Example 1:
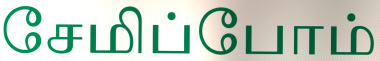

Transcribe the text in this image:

சேமிப்போம்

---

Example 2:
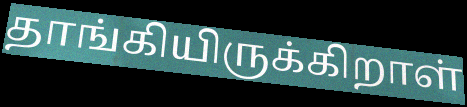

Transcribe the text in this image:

தாங்கியிருக்கிறாள்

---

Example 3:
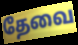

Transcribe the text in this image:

தேவை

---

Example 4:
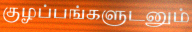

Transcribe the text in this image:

குழப்பங்களுடனும்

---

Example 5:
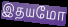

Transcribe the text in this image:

இதயமோ